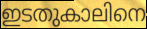
ഇടതുകാലിനെ